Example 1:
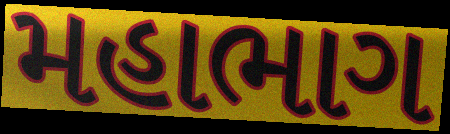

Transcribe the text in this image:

મહાભાગ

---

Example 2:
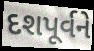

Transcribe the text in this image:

દશપૂર્વને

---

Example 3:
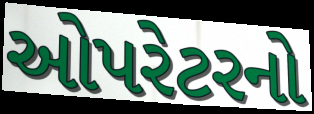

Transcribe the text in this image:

ઓપરેટરનો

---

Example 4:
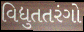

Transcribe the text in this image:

વિદ્યુતતરંગો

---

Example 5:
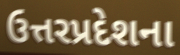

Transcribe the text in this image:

ઉત્તરપ્રદેશના